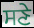
ਸਣੇ